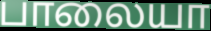
பாலையா